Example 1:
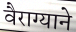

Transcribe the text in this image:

वैराग्याने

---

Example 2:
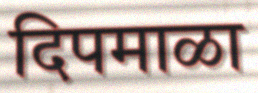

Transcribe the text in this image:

दिपमाळा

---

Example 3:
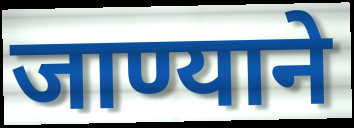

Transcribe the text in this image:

जाण्याने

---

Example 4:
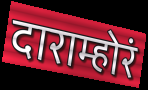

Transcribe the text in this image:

दाराम्होरं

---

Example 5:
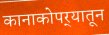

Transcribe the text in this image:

कानाकोपर्यातून